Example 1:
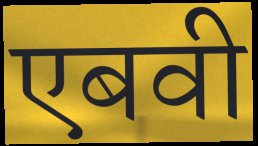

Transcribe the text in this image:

एबवी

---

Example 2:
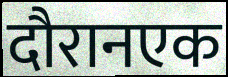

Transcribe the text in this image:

दौरानएक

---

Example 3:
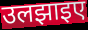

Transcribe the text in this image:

उलझाइए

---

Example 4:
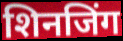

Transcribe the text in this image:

शिनजिंग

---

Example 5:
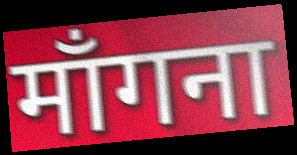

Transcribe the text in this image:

माँगना